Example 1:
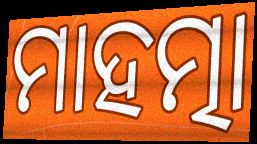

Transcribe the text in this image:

ମାହତ୍ମା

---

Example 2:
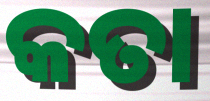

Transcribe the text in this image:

କତା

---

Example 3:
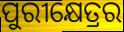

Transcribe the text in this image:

ପୁରୀକ୍ଷେତ୍ରର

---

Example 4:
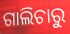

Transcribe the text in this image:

ଗାଲିଚାରୁ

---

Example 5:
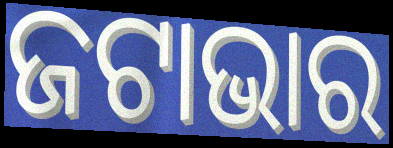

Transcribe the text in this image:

ଜଟାଭାର